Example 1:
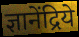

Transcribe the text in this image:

ज्ञानेंद्रिये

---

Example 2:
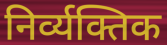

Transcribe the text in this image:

निर्व्यक्तिक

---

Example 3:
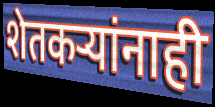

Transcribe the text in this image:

शेतकऱ्यांनाही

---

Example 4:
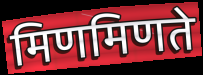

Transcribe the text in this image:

मिणमिणते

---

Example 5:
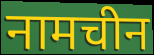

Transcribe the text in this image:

नामचीन